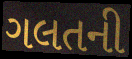
ગલતની